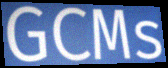
GCMs